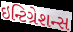
ઇન્ટિગ્રેશન્સ